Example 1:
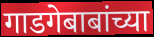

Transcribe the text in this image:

गाडगेबाबांच्या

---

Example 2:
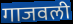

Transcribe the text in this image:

गाजवली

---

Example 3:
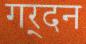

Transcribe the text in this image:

गर्दन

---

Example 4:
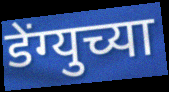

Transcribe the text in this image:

डेंग्युच्या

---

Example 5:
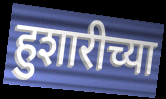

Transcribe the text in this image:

हुशारीच्या